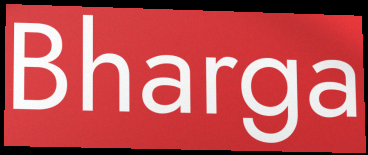
Bharga